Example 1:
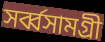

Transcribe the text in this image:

সর্ব্বসামগ্রী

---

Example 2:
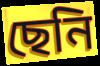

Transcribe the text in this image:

ছেনি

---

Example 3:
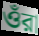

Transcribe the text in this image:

ওঁরা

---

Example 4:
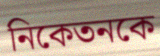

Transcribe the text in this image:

নিকেতনকে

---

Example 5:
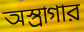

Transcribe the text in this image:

অস্ত্রাগার